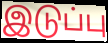
இடுப்பு